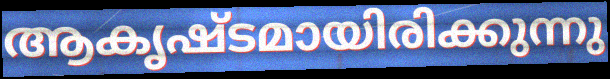
ആകൃഷ്ടമായിരിക്കുന്നു